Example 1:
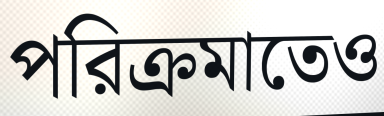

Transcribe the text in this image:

পরিক্রমাতেও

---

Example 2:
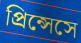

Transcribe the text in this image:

প্রিন্সেসে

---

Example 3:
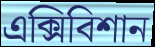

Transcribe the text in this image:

এক্সিবিশান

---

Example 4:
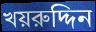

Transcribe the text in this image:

খয়রুদ্দিন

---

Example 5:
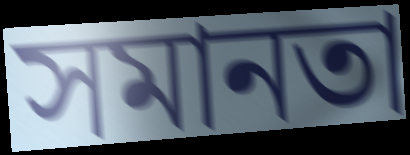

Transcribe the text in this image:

সমানতা